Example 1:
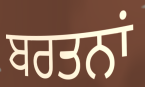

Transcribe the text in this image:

ਬਰਤਨਾਂ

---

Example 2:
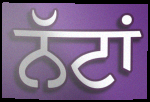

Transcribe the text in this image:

ਨੱਟਾਂ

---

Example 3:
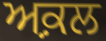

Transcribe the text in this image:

ਅ਼ਕ਼ਲ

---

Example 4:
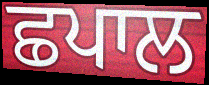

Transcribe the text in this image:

ਛਪਾਲ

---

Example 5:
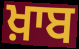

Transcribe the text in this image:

ਖ਼ਾਬ